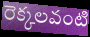
రెక్కలవంటి